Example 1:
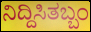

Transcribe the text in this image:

ನಿದ್ದಿಸಿತಬ್ಬಂ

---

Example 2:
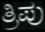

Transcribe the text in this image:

ತ್ರಿಪು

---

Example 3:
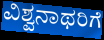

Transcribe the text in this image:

ವಿಶ್ವನಾಥರಿಗೆ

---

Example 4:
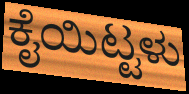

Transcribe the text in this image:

ಕೈಯಿಟ್ಟಳು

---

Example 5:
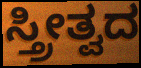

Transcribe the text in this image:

ಸ್ತ್ರೀತ್ವದ